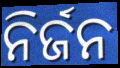
ନିର୍ଜନ